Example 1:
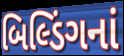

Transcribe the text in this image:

બિલ્ડિંગનાં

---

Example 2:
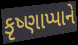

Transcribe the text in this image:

કૃષ્ણાપ્પાને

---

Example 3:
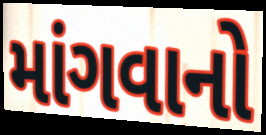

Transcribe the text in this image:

માંગવાનો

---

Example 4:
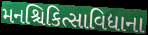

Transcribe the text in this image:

મનશ્ચિકિત્સાવિદ્યાના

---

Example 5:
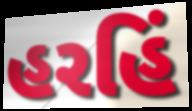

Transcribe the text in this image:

હરહિં